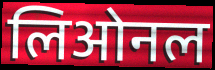
लिओनल